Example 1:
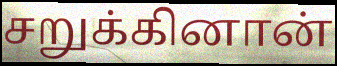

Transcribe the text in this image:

சறுக்கினான்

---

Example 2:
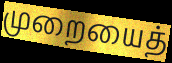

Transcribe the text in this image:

முறையைத்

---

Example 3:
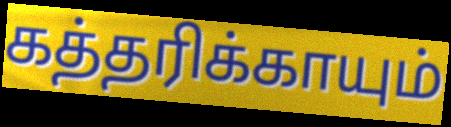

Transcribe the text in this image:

கத்தரிக்காயும்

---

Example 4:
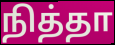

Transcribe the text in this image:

நித்தா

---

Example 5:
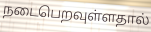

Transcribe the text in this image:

நடைபெறவுள்ளதால்